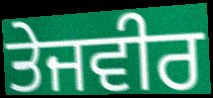
ਤੇਜਵੀਰ